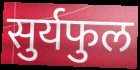
सुर्यफुल